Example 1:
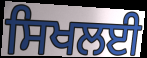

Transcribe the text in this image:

ਸਿਖਲਈ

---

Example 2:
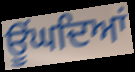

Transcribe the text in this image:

ਊਂਘਦਿਆਂ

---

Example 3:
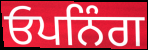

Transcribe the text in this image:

ਓਪਨਿੰਗ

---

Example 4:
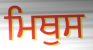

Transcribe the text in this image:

ਮਿਥੁਸ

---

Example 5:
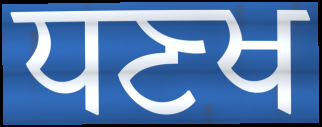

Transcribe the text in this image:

ਧਣਖ